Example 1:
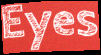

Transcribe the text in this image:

Eyes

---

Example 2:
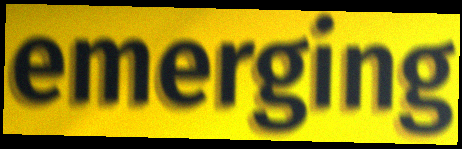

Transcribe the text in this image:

emerging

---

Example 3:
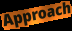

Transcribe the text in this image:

Approach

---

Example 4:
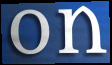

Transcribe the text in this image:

on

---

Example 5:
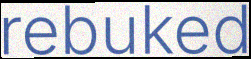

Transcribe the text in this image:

rebuked